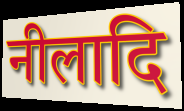
नीलादि